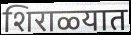
शिराळ्यात